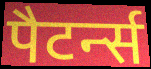
पैटर्न्स